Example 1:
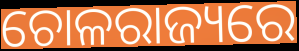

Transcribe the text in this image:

ଚୋଳରାଜ୍ୟରେ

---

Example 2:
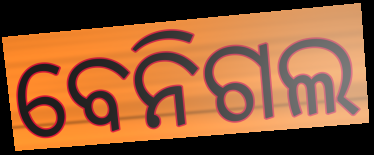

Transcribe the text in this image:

ବେନିଗଲ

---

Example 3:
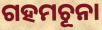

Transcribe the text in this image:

ଗହମଚୂନା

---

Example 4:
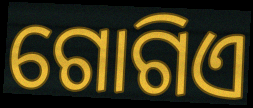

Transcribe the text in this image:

ଗୋଗିଏ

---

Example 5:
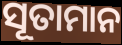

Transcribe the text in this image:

ସୂତାମାନ